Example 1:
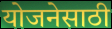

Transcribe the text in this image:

योजनेसाठी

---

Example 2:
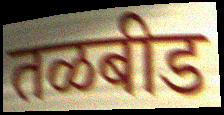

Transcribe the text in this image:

तळबीड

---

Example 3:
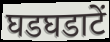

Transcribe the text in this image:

घडघडाटें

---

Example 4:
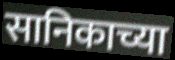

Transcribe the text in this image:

सानिकाच्या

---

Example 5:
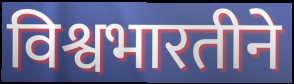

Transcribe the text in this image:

विश्वभारतीने